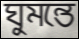
ঘুমন্তে